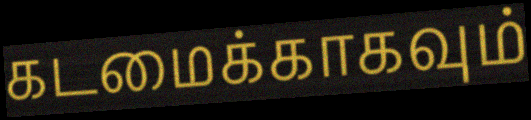
கடமைக்காகவும்